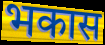
भकास